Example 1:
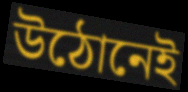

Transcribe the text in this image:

উঠোনেই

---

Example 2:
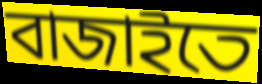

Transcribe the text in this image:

বাজাইতে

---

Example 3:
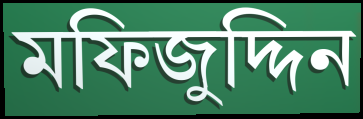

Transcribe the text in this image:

মফিজুদ্দিন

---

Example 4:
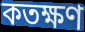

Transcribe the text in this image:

কতক্ষণ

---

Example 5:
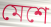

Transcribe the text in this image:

মেশে